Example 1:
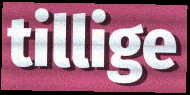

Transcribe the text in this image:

tillige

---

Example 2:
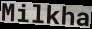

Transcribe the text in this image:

Milkha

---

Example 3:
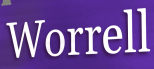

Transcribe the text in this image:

Worrell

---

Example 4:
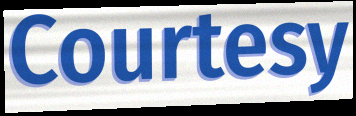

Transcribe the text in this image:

Courtesy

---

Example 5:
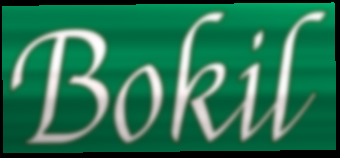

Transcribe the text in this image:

Bokil